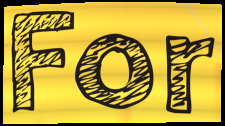
For